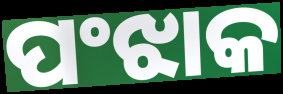
ପଂଝାକ